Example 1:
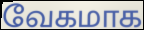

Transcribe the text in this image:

வேகமாக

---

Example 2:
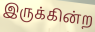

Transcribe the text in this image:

இருக்கின்ற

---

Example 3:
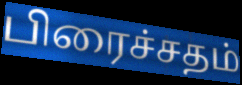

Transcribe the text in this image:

பிரைச்சதம்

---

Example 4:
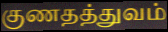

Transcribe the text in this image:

குணதத்துவம்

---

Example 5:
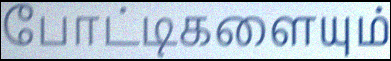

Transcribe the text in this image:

போட்டிகளையும்